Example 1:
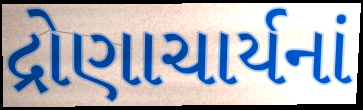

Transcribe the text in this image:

દ્રોણાચાર્યનાં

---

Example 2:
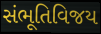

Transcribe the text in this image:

સંભૂતિવિજય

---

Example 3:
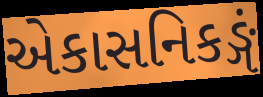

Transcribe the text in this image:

એકાસનિકઙ્ગં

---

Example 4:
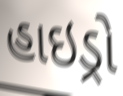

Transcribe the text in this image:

હાઇડ્રો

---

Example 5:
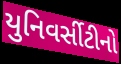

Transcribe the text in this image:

યુનિવર્સીટીનો